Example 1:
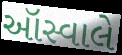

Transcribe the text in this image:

ઑસ્વાલે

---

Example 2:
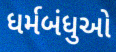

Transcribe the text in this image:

ધર્મબંધુઓ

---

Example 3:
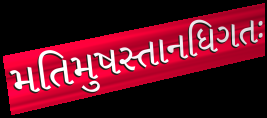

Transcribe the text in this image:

મતિમુષસ્તાનધિગતઃ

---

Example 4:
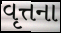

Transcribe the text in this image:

વૃત્તના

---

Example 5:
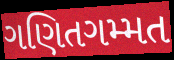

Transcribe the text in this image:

ગણિતગમ્મત